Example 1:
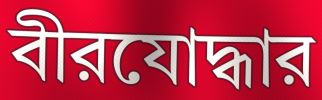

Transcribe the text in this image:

বীরযোদ্ধার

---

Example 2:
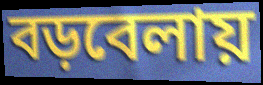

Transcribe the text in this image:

বড়বেলায়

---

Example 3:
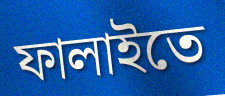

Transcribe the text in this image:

ফালাইতে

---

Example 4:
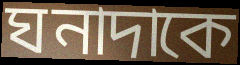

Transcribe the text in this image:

ঘনাদাকে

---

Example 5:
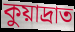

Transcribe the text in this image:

কুয়াদ্রাত